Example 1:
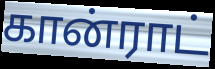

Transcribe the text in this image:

கான்ராட்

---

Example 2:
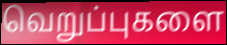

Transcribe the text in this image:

வெறுப்புகளை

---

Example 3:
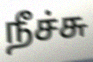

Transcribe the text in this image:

நீச்சு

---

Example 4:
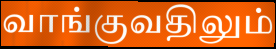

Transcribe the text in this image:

வாங்குவதிலும்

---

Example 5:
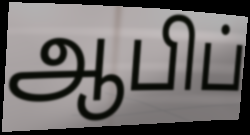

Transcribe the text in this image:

ஆபிப்